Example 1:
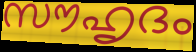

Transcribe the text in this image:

സൗഹൃദം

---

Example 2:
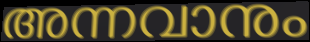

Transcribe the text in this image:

അന്നവാനും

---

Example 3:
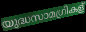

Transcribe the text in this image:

യുദ്ധസാമഗ്രികള്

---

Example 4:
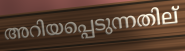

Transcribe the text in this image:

അറിയപ്പെടുന്നതില്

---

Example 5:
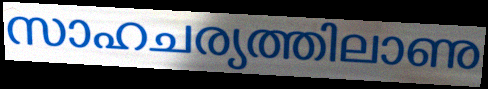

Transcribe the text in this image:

സാഹചര്യത്തിലാണു